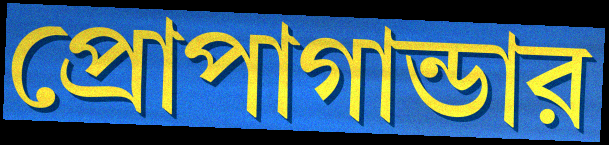
প্রোপাগান্ডার